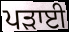
ਪੜਾਈ